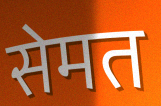
सेमत